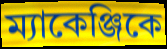
ম্যাকেঞ্জিকে